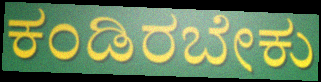
ಕಂಡಿರಬೇಕು